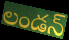
లండన్